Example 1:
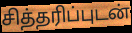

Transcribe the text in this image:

சித்தரிப்புடன்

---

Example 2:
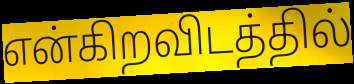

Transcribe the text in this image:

என்கிறவிடத்தில்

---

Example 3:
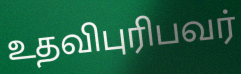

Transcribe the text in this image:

உதவிபுரிபவர்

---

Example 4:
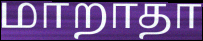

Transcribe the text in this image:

மாறாதா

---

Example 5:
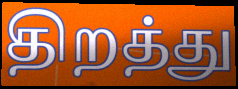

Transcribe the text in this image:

திறத்து